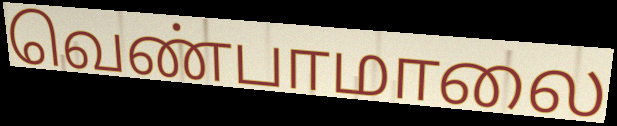
வெண்பாமாலை